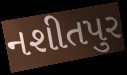
નશીતપુર